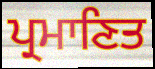
ਪ੍ਰਮਾਣਿਤ